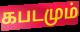
கபடமும்